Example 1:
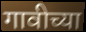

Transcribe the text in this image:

गावीच्या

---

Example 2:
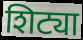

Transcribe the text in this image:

शिट्या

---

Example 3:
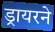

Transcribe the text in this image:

ड्रायरने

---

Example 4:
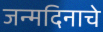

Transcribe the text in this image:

जन्मदिनाचे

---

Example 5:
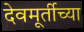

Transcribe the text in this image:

देवमूर्तीच्या